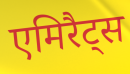
एमिरैट्स